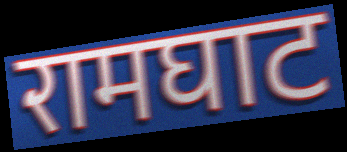
रामघाट